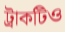
ট্রাকটিও